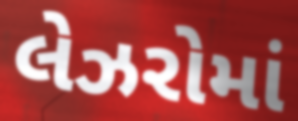
લેઝરોમાં